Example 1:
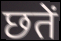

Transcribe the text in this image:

छतें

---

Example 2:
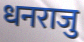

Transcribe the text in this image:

धनराजु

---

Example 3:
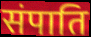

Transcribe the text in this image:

संपाति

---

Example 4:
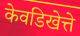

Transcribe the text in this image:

केवडिखेत्ते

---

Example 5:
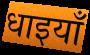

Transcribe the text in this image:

धाइयाँ